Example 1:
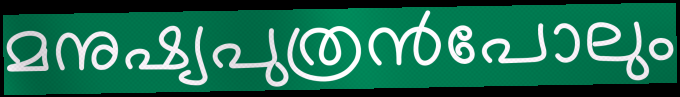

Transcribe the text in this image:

മനുഷ്യപുത്രൻപോലും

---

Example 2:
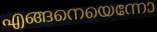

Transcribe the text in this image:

എങ്ങനെയെന്നോ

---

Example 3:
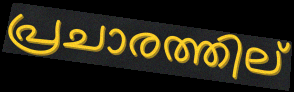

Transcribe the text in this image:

പ്രചാരത്തില്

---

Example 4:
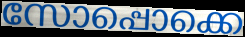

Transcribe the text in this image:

സോപ്പൊക്കെ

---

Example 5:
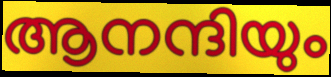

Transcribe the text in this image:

ആനന്ദിയും